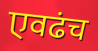
एवढंच